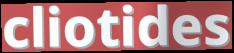
cliotides